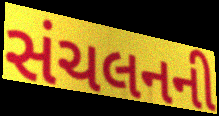
સંચલનની